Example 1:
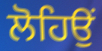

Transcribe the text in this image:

ਲੋਹਿਉਂ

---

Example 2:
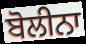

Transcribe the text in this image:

ਬੋਲੀਨਾ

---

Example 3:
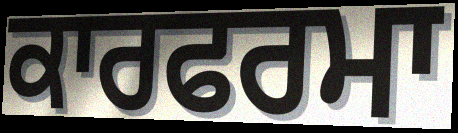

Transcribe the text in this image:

ਕਾਰਫਰਮਾ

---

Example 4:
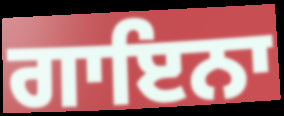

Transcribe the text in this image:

ਗਾਇਨਾ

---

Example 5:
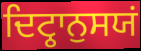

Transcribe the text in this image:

ਦਿਟ੍ਠਾਨੁਸਯਂ